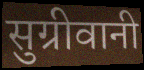
सुग्रीवानी